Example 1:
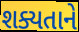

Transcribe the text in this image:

શક્યતાને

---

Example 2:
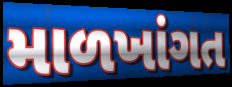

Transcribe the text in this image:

માળખાંગત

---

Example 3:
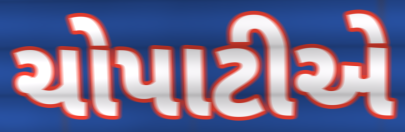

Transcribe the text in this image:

ચોપાટીએ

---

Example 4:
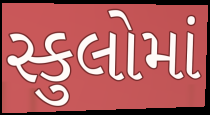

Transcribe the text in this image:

સ્કુલોમાં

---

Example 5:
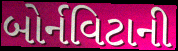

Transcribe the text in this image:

બોર્નવિટાની